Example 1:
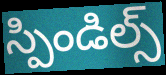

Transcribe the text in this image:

స్పిండిల్స్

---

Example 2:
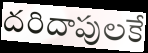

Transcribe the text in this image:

దరిదాపులకే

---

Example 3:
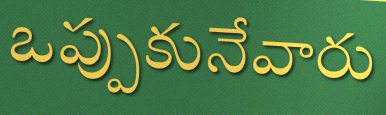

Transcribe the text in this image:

ఒప్పుకునేవారు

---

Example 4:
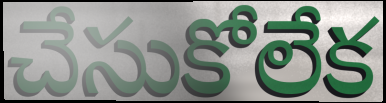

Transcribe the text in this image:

చేసుకోలేక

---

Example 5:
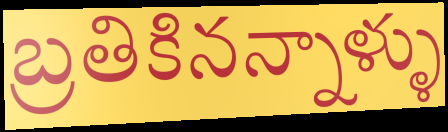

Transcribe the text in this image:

బ్రతికినన్నాళ్ళు